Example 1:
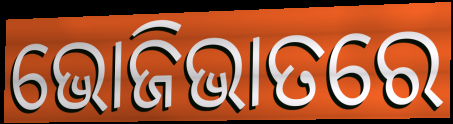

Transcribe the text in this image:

ଭୋଜିଭାତରେ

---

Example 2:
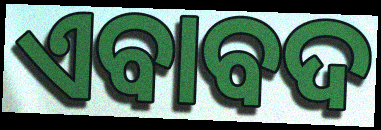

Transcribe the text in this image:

ଏବାବଦ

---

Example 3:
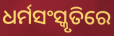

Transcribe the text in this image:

ଧର୍ମସଂସ୍କୃତିରେ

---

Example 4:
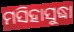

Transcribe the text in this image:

ମସିହାସୁଦ୍ଧା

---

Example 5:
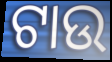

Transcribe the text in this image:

ଟାଉ